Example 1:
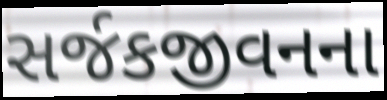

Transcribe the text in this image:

સર્જકજીવનના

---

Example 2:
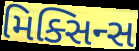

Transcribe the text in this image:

મિક્સિન્સ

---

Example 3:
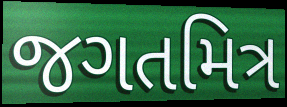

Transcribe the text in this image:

જગતમિત્ર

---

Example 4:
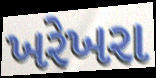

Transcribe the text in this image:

ખરેખરા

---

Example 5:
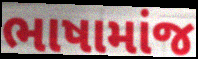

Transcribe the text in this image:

ભાષામાંજ